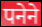
पनेने